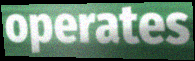
operates